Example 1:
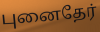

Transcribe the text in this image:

புனைதேர்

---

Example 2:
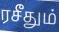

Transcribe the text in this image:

ரசீதும்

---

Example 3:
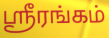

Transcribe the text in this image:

ஸ்ரீரங்கம்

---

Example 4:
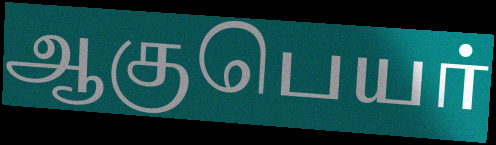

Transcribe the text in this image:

ஆகுபெயர்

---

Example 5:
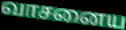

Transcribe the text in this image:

வாசனைய